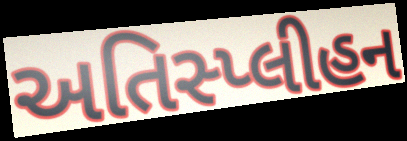
અતિસ્પ્લીહન